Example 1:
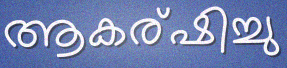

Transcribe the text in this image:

ആകര്ഷിച്ചു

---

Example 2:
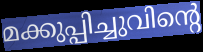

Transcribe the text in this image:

മക്കുപ്പിച്ചുവിന്റെ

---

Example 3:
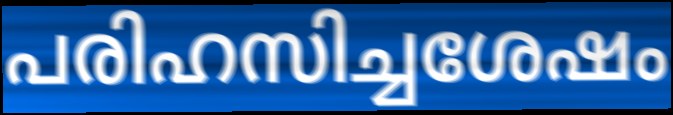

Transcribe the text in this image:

പരിഹസിച്ചശേഷം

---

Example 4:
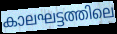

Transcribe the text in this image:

കാലഘട്ടത്തിലെ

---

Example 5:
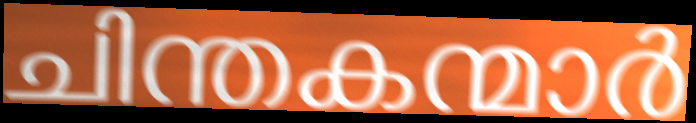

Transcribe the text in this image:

ചിന്തകന്മാർ